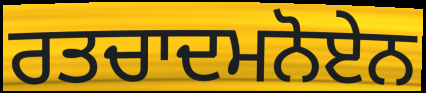
ਰਤਚਾਦਮਨੋਏਨ